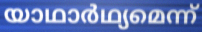
യാഥാർഥ്യമെന്ന്